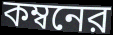
কম্বনের